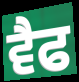
ਵੈਫ